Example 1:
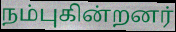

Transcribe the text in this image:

நம்புகின்றனர்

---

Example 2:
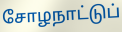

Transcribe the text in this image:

சோழநாட்டுப்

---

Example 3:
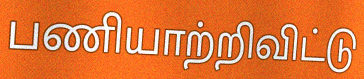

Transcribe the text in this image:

பணியாற்றிவிட்டு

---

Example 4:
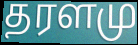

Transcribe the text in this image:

தரளமு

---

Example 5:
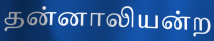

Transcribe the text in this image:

தன்னாலியன்ற